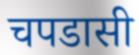
चपडासी